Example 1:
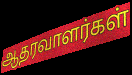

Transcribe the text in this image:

ஆதரவாளர்கள்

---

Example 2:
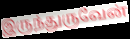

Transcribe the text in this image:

இருந்துருவேன்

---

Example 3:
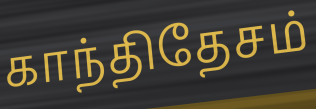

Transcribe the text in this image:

காந்திதேசம்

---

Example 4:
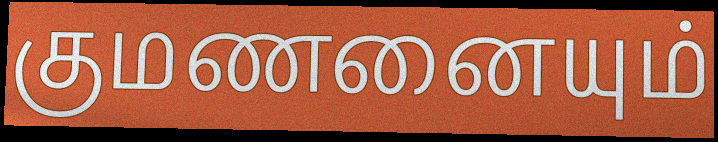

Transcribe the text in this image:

குமணனையும்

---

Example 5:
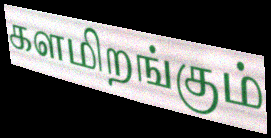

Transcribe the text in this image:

களமிறங்கும்